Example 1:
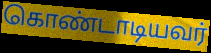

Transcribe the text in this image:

கொண்டாடியவர்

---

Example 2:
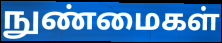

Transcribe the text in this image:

நுண்மைகள்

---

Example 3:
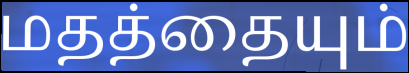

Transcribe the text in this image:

மதத்தையும்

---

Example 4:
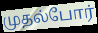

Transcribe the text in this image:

முதல்போர்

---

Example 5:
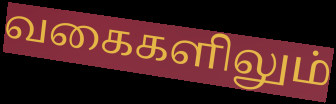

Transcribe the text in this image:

வகைகளிலும்